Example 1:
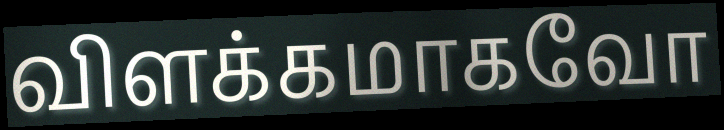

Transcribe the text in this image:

விளக்கமாகவோ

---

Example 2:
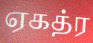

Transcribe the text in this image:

ஏகத்ர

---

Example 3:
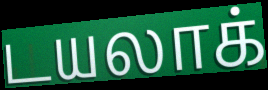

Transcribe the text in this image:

டயலாக்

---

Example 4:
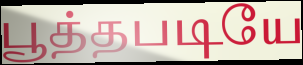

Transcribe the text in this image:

பூத்தபடியே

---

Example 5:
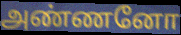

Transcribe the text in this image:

அண்ணனோ